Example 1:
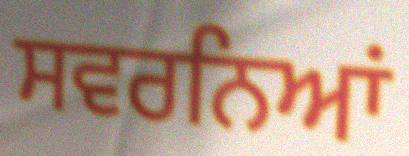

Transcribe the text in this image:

ਸਵਰਨਿਆਂ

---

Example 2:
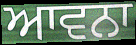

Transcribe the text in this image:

ਆਵਨਾ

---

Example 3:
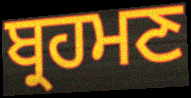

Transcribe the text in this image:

ਬ੍ਰਹਮਣ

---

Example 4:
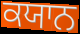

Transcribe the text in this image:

ਕਯਾਨ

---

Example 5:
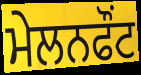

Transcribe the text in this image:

ਮੇਲਨਫੌਂਟ